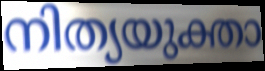
നിത്യയുക്താ